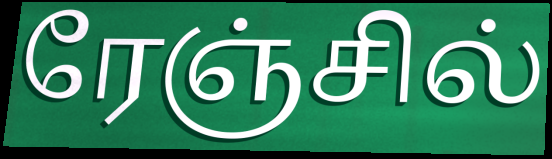
ரேஞ்சில்